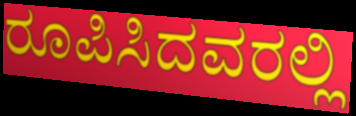
ರೂಪಿಸಿದವರಲ್ಲಿ